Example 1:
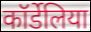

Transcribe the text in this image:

कॉर्डेलिया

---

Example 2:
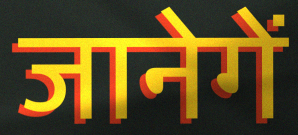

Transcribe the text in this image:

जानेगें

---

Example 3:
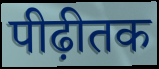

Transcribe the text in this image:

पीढ़ीतक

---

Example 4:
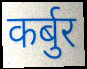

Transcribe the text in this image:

कर्बुर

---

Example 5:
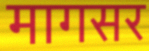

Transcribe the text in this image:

मागसर